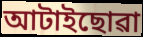
আটাইছোৱা